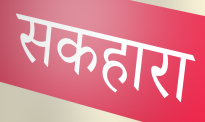
सकहारा